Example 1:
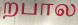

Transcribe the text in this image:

றபால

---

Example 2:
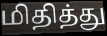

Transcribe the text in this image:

மிதித்து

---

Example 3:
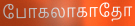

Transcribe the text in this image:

போகலாகாதோ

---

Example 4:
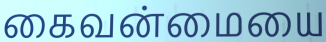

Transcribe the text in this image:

கைவன்மையை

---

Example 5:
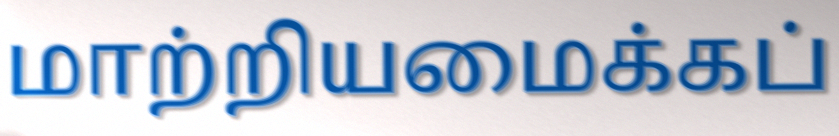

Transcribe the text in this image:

மாற்றியமைக்கப்